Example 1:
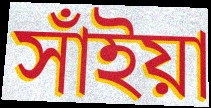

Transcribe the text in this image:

সাঁইয়া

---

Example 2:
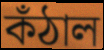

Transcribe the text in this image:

কঁঠাল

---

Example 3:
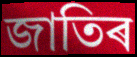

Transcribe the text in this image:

জাতিৰ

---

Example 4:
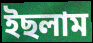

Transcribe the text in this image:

ইছলাম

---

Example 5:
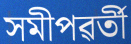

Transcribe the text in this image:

সমীপৱৰ্তী